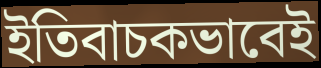
ইতিবাচকভাবেই